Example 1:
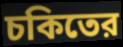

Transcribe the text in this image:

চকিতের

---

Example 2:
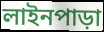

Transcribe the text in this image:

লাইনপাড়া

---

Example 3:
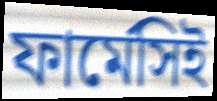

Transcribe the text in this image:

ফার্মেসিই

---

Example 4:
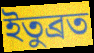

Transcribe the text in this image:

ইতুব্রত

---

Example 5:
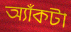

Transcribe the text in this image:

অ্যাঁকটা